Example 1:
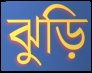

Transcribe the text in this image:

ঝুড়ি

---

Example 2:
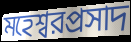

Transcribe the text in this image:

মহেশ্বরপ্রসাদ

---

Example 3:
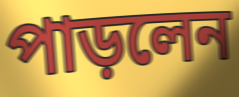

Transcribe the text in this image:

পাড়লেন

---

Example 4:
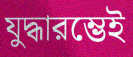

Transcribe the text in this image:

যুদ্ধারম্ভেই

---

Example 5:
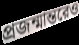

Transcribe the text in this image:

প্রজন্মান্তরেও